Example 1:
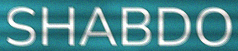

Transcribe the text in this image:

SHABDO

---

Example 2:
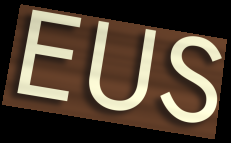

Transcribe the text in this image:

EUS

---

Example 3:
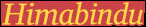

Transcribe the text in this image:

Himabindu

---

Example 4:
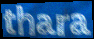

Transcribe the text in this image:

thara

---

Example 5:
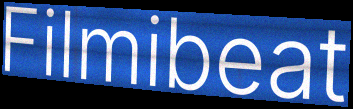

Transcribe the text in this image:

Filmibeat